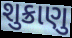
શુક્રાણુ